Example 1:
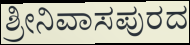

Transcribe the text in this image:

ಶ್ರೀನಿವಾಸಪುರದ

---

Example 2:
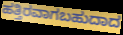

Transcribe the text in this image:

ಹತ್ತಿರವಾಗಬಹುದಾದ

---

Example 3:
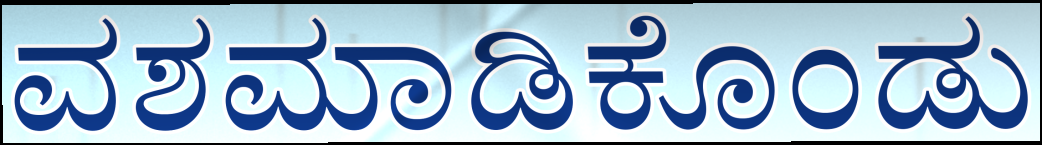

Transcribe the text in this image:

ವಶಮಾಡಿಕೊಂಡು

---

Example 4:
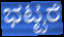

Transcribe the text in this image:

ಭಟ್ಟರೆ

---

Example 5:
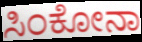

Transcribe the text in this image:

ಸಿಂಕೋನಾ